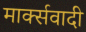
मार्क्सवादी